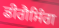
ਡੀਗੈਸਿੰਗ